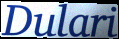
Dulari